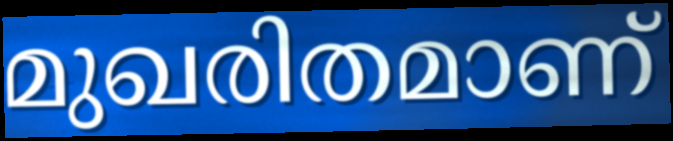
മുഖരിതമാണ്